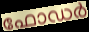
ഫോഡർ